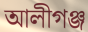
আলীগঞ্জ